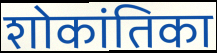
शोकांतिका